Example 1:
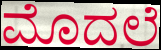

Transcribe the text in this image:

ಮೊದಲೆ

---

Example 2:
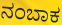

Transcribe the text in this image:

ನಂಬಾಕ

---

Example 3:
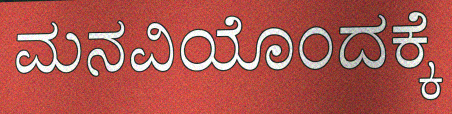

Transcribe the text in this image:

ಮನವಿಯೊಂದಕ್ಕೆ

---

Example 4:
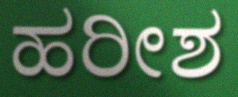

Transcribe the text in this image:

ಹರೀಶ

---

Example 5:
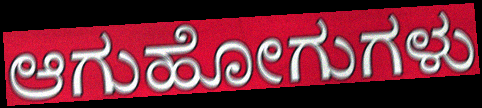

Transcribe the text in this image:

ಆಗುಹೋಗುಗಳು